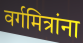
वर्गमित्रांना